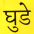
घुडे